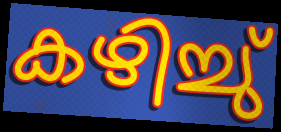
കഴിച്ചു്